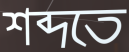
শব্দতে